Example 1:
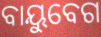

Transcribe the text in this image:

ବାୟୁବେଗ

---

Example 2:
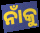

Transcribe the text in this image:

ନାଁକୁ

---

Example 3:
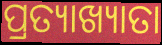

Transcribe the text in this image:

ପ୍ରତ୍ୟାଖ୍ୟାତା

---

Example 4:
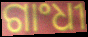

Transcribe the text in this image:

ଗାଂଧୀ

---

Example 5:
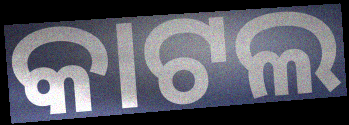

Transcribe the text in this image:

କାଟଲ